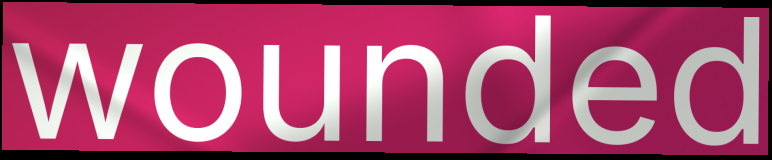
wounded